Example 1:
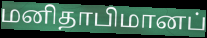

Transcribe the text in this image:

மனிதாபிமானப்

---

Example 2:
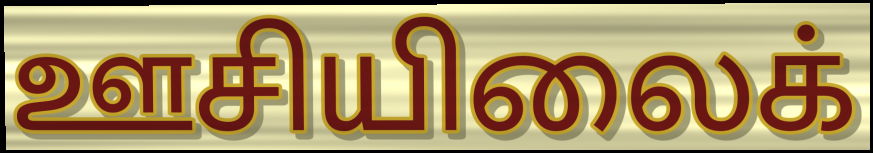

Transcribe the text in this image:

ஊசியிலைக்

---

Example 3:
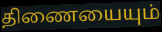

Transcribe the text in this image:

திணையையும்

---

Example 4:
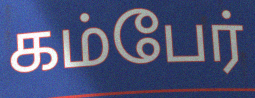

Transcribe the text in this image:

கம்பேர்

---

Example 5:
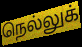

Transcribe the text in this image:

நெல்லுக்